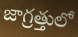
జాగ్రత్తులో